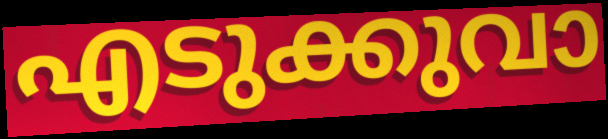
എടുക്കുവാ